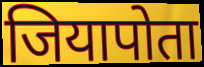
जियापोता